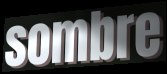
sombre